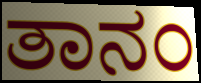
ತಾನಂ